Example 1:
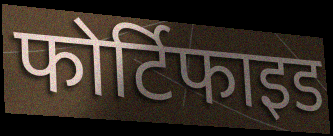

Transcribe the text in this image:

फोर्टिफाइड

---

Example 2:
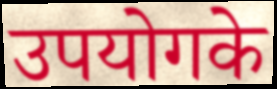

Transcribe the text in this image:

उपयोगके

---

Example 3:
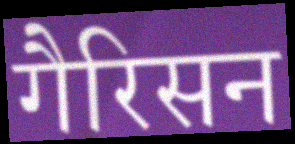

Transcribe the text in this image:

गैरिसन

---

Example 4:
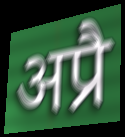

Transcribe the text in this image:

अप्रै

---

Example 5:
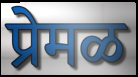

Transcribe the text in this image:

प्रेमळ